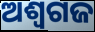
ଅଶ୍ୱଗଜ